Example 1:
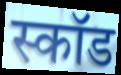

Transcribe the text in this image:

स्कॉड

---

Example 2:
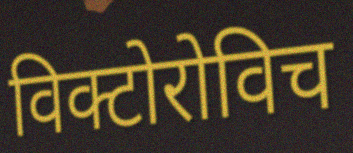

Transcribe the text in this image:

विक्टोरोविच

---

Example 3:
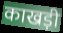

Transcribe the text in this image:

काखड़ी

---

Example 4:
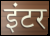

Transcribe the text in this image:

इंटर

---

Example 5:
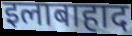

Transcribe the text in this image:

इलाबाहाद